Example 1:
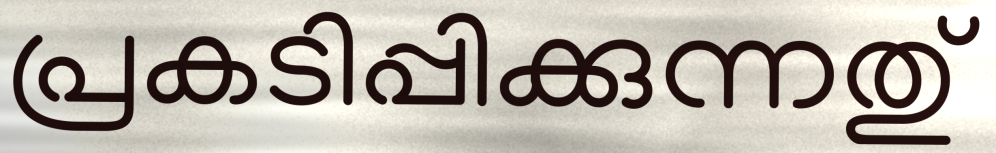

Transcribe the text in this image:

പ്രകടിപ്പിക്കുന്നതു്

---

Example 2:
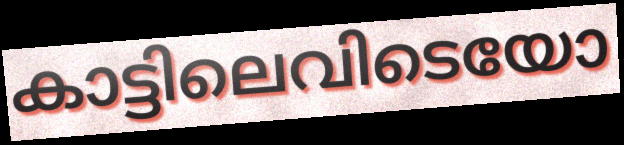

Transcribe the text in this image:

കാട്ടിലെവിടെയോ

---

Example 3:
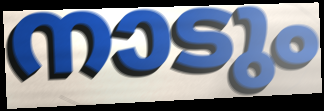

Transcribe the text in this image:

നാടും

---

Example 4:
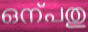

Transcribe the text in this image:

ഒന്പതു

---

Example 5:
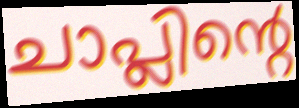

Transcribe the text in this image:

ചാപ്ലിന്റെ